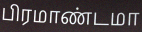
பிரமாண்டமா